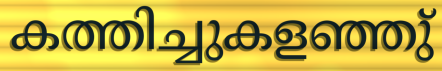
കത്തിച്ചുകളഞ്ഞു്